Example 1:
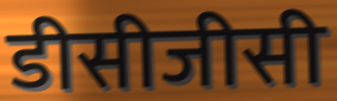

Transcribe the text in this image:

डीसीजीसी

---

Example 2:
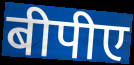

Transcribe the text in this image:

बीपीए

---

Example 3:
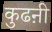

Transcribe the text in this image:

कुढऩी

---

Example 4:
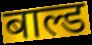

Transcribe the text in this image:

बाल्ड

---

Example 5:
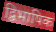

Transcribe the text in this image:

द्विभाषिक